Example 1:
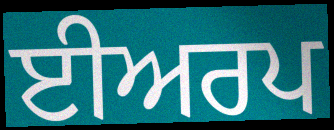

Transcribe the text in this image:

ਈਅਰਪ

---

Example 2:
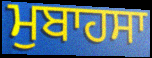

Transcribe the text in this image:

ਮੁਬਾਹਸਾ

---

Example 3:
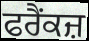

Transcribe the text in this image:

ਫਰੈਂਕਜ਼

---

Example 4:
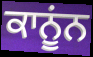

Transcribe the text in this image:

ਕਾਨੂਂਨ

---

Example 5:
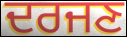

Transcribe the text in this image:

ਦਰਜਣ